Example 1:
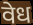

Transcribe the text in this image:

वेध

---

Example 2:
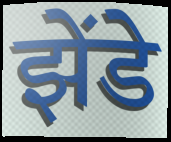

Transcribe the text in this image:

झेंडे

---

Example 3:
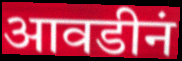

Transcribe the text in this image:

आवडीनं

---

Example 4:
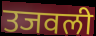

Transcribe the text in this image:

उजवली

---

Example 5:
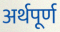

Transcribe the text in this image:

अर्थपूर्ण